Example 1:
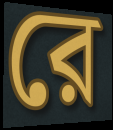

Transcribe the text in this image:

রে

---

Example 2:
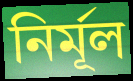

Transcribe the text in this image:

নির্মূল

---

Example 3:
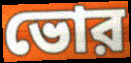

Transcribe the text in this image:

ভোর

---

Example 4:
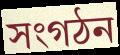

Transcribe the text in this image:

সংগঠন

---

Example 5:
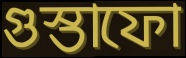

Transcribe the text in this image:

গুস্তাফো